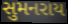
સુમનરાય